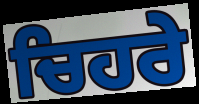
ਚਿਹਰੇ